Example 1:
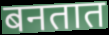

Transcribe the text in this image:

बनतात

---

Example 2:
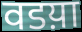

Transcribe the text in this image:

वडय़ा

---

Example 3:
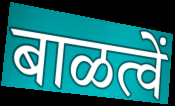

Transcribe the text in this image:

बाळत्वें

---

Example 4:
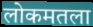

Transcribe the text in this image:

लोकमतला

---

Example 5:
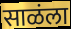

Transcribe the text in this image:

साळंला